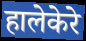
हालेकेरे